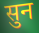
सुन